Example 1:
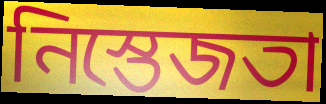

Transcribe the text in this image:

নিস্তেজতা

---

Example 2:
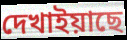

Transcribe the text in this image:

দেখাইয়াছে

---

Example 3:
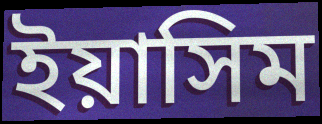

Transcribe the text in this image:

ইয়াসিম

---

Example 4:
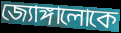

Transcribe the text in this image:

জ্যোঙ্গালোকে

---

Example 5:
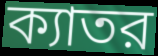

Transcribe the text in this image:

ক্যাতর